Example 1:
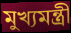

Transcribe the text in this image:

মুখ্য়মন্ত্রী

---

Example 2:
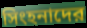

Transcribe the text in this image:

সিংহনাদের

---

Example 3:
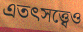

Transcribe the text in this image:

এতৎসত্ত্বেও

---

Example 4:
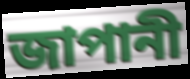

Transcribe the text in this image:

জাপানী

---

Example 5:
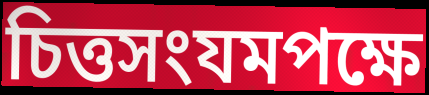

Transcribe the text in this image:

চিত্তসংযমপক্ষে